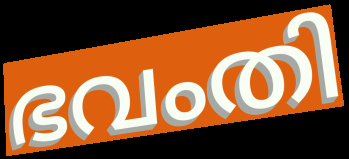
ഭവംതി